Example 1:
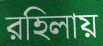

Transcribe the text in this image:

রহিলায়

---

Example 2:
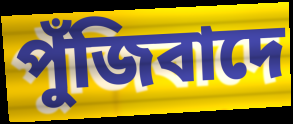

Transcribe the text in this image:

পুঁজিবাদে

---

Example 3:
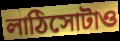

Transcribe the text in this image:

লাঠিসোটাও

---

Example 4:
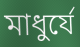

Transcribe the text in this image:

মাধুর্যে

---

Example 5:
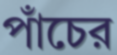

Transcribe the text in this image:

পাঁচের